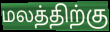
மலத்திற்கு